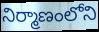
నిర్మాణంలోని